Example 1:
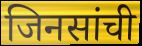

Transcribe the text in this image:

जिनसांची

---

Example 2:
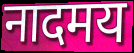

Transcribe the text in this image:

नादमय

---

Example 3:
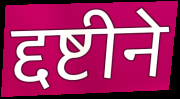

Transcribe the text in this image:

द्दष्टीने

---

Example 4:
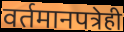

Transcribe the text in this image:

वर्तमानपत्रेही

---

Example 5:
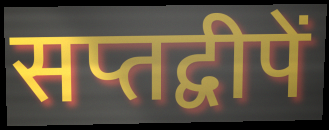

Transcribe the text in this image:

सप्तद्वीपें